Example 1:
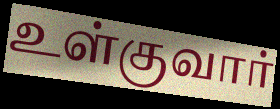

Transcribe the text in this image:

உள்குவார்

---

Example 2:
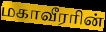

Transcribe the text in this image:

மகாவீரரின்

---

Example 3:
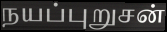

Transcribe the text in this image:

நயப்புறுசன்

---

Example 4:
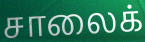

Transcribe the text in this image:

சாலைக்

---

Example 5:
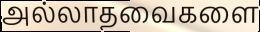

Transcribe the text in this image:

அல்லாதவைகளை